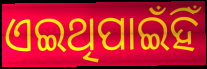
ଏଇଥିପାଇଁହିଁ